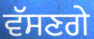
ਵੱਸਣਗੇ